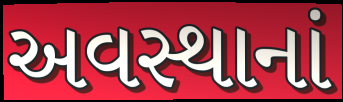
અવસ્થાનાં